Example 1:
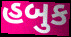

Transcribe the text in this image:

હબુક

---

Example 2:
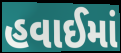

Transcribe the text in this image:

હવાઈમાં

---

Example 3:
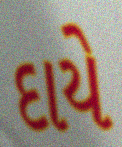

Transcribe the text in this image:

દાયે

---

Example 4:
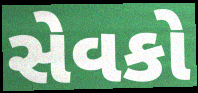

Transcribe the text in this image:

સેવકો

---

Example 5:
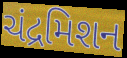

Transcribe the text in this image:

ચંદ્રમિશન